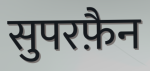
सुपरफ़ैन